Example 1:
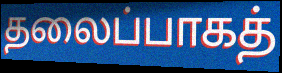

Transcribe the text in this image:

தலைப்பாகத்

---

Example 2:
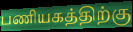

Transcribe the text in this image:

பணியகத்திற்கு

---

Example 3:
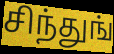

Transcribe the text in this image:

சிந்துங்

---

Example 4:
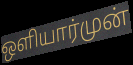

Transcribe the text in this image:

ஒளியார்முன்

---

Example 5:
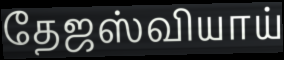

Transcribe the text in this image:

தேஜஸ்வியாய்